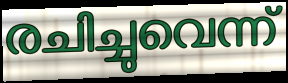
രചിച്ചുവെന്ന്